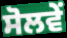
ਸੋਲਵੇਂ